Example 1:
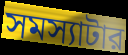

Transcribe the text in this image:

সমস্যাটার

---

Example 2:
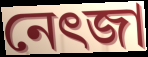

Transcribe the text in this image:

নেৎজা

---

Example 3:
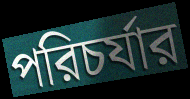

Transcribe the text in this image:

পরিচর্যার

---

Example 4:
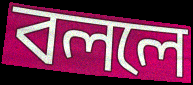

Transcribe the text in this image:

বললে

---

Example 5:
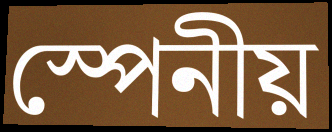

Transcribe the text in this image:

স্পেনীয়